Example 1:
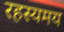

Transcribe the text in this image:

रहस्यमय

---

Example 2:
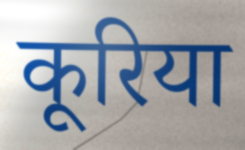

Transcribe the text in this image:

कूरिया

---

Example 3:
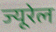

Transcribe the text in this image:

ज्यूरेल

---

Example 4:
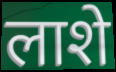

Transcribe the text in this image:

लाशे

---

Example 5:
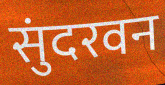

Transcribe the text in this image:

सुंदरवन